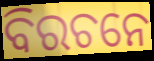
ବିରଚନେ